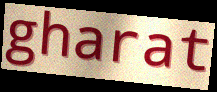
gharat